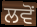
ਲਵੋਂ